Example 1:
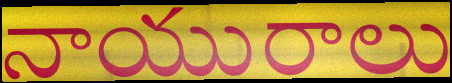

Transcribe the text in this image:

నాయురాలు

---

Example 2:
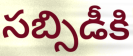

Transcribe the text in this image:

సబ్సిడీకి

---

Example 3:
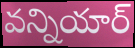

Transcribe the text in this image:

వన్నియార్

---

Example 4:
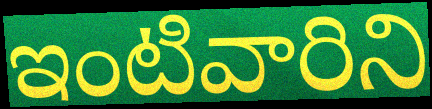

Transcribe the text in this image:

ఇంటివారిని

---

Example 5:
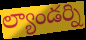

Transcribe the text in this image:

ల్యాండర్ని